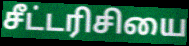
சீட்டரிசியை